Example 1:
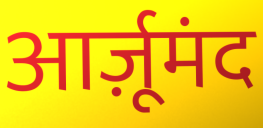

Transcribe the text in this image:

आर्ज़ूमंद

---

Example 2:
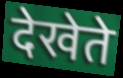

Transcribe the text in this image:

देखेते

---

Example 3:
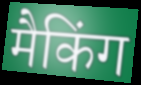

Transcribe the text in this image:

मैकिंग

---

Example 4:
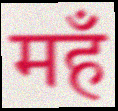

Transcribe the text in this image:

महँ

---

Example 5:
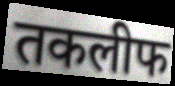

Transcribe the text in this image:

तकलीफ